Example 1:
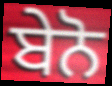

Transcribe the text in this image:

ਬੇਨੋ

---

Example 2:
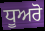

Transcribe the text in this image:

ਧੂਅਰੋ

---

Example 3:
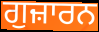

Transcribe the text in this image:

ਗੁਜ਼ਾਰਨ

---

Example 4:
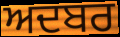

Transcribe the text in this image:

ਅਦਬਰ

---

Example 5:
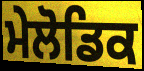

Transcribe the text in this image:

ਮੇਲੋਡਿਕ